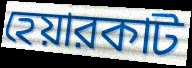
হেয়ারকাট